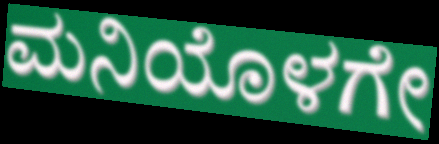
ಮನಿಯೊಳಗೇ